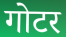
गोटर